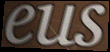
eus